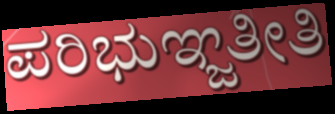
ಪರಿಭುಞ್ಜತೀತಿ